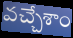
వచ్చేశాం